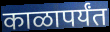
काळापर्यंत